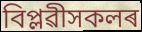
বিপ্লৱীসকলৰ